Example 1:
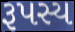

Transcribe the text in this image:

રૂપસ્ય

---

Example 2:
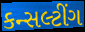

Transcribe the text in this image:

કન્સલ્ટીંગ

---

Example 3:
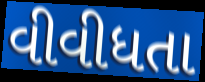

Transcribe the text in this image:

વીવીધતા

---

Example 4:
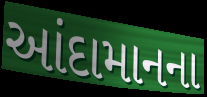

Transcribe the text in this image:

આંદામાનના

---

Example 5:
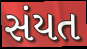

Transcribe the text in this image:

સંયત